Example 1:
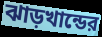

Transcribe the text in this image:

ঝাড়খান্ডের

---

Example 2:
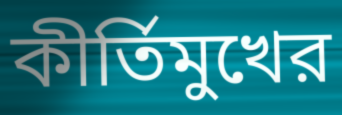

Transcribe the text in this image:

কীর্তিমুখের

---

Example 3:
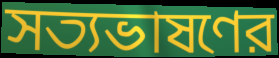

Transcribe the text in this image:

সত্যভাষণের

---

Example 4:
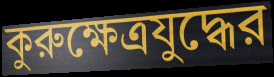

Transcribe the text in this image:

কুরুক্ষেত্রযুদ্ধের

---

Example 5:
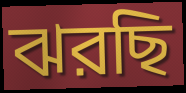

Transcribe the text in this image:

ঝরছি